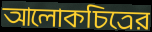
আলোকচিত্রের